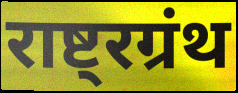
राष्ट्रग्रंथ